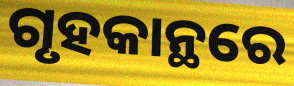
ଗୃହକାନ୍ଥରେ